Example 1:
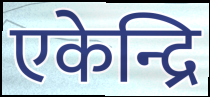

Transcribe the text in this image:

एकेन्द्रि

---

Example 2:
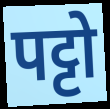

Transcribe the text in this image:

पट्टो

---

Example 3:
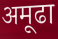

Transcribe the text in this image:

अमूढा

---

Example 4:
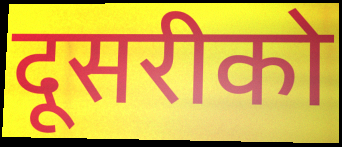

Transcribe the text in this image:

दूसरीको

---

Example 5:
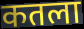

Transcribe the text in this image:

कतला